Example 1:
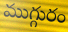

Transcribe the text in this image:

ముగ్గురం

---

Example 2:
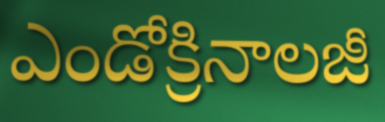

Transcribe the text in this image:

ఎండోక్రినాలజీ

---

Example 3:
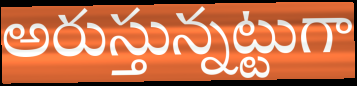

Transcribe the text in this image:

అరుస్తున్నట్టుగా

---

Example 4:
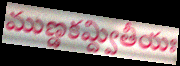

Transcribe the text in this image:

ముణ్డకమ్ద్వితీయః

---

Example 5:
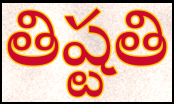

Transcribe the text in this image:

తిష్టతి